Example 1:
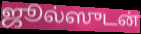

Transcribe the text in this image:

ஜூல்ஸுடன்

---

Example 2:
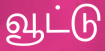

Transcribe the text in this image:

வூட்டு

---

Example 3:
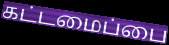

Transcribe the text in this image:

கட்டமைப்பை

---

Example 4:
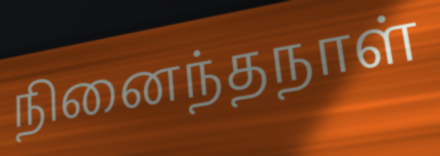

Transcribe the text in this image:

நினைந்தநாள்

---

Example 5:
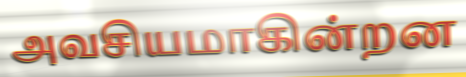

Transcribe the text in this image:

அவசியமாகின்றன